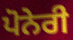
ਪੋਨੇਰੀ